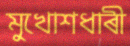
মুখোশধাৰী